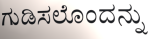
ಗುಡಿಸಲೊಂದನ್ನು